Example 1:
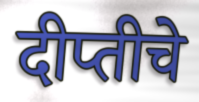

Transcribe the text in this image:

दीप्तीचे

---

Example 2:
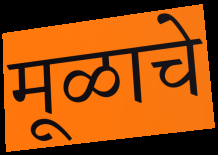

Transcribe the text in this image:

मूळाचे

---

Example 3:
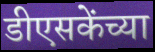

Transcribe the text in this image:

डीएसकेंच्या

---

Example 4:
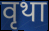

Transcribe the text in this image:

वृथा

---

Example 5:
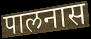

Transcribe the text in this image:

पालनास